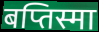
बप्तिस्मा